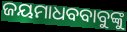
ଜୟମାଧବବାବୁଙ୍କୁ